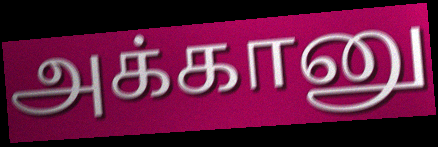
அக்கானு